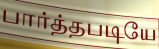
பார்த்தபடியே